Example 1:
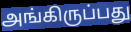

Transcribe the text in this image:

அங்கிருப்பது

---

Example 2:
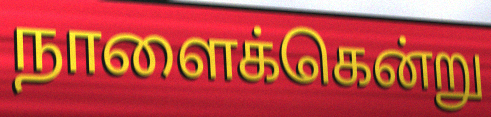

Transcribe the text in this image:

நாளைக்கென்று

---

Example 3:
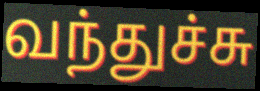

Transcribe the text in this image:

வந்துச்சு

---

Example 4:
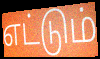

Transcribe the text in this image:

எட்டும்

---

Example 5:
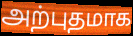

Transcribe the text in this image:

அற்புதமாக